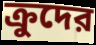
ক্রুদের